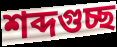
শব্দগুচ্ছ